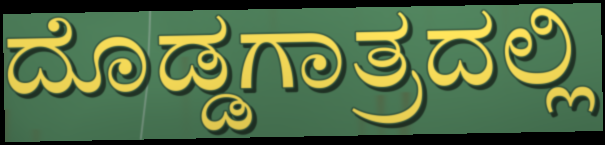
ದೊಡ್ಡಗಾತ್ರದಲ್ಲಿ